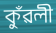
কুঁৱলী